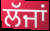
ਲੱਜਾਂ